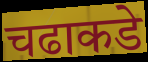
चढाकडे